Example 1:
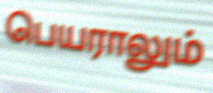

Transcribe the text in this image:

பெயராலும்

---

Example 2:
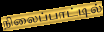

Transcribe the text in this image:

நிலைப்பாட்டில்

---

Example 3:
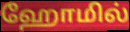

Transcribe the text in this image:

ஹோமில்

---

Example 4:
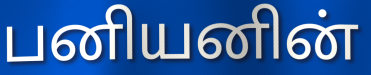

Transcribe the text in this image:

பனியனின்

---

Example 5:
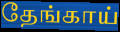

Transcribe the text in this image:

தேங்காய்